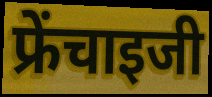
फ्रेंचाइजी